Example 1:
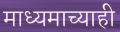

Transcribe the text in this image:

माध्यमाच्याही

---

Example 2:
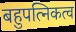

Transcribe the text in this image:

बहुपत्निकत्व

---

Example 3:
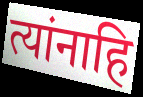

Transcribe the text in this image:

त्यांनाहि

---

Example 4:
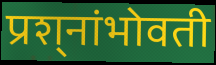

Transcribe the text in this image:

प्रश्नांभोवती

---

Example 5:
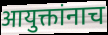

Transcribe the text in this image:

आयुक्तांनाच